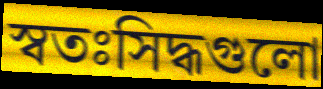
স্বতঃসিদ্ধগুলো